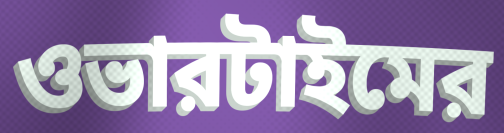
ওভারটাইমের